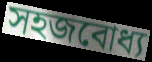
সহজবোধ্য